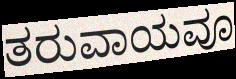
ತರುವಾಯವೂ